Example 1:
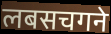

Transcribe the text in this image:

लबसचगने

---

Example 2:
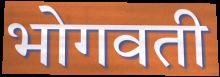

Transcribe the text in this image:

भोगवती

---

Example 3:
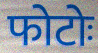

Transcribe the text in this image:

फोटोः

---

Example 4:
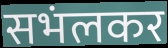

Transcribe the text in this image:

सभंलकर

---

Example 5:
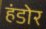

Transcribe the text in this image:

हंडोर